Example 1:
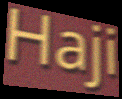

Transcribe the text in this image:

Haji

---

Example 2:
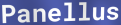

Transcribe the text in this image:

Panellus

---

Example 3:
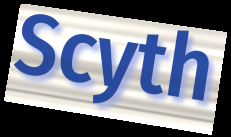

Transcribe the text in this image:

Scyth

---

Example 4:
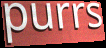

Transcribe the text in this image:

purrs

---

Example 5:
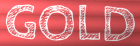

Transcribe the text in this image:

GOLD